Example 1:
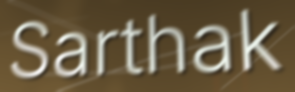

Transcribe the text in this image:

Sarthak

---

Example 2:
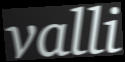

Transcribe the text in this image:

valli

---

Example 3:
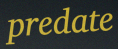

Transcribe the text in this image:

predate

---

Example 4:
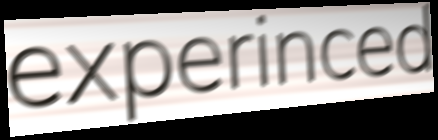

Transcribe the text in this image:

experinced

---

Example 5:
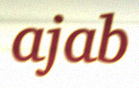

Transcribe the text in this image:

ajab